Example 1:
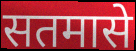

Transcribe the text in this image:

सतमासे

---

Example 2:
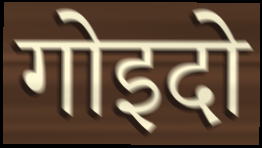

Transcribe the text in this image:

गोइदो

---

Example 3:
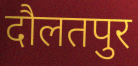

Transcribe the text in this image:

दौलतपुर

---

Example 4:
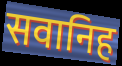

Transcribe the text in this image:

सवानिह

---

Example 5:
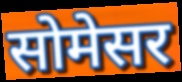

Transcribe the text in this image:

सोमेसर